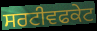
ਸਰਟੀਵਫਕੇਟ